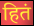
हितं